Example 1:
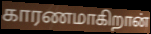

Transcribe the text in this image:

காரணமாகிறான்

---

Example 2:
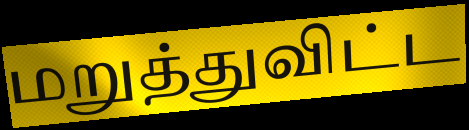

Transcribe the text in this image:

மறுத்துவிட்ட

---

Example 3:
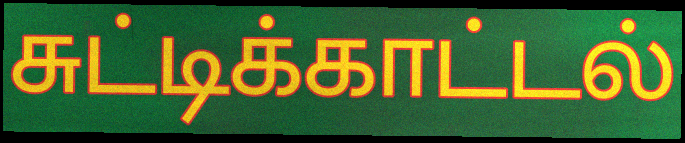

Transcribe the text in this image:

சுட்டிக்காட்டல்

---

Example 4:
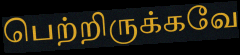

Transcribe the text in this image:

பெற்றிருக்கவே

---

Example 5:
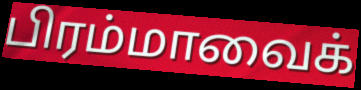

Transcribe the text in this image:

பிரம்மாவைக்